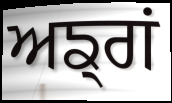
ਅਙ੍ਗਂ